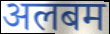
अलबम